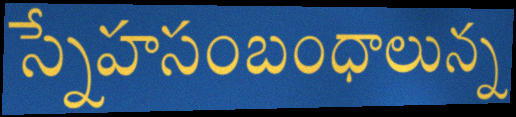
స్నేహసంబంధాలున్న